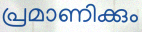
പ്രമാണിക്കും